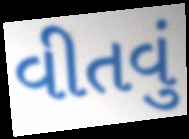
વીતવું